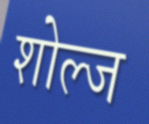
शोल्ज